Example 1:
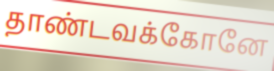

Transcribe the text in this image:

தாண்டவக்கோனே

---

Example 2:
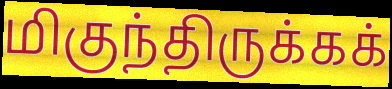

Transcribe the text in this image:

மிகுந்திருக்கக்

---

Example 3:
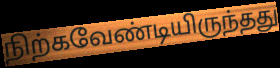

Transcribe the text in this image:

நிற்கவேண்டியிருந்தது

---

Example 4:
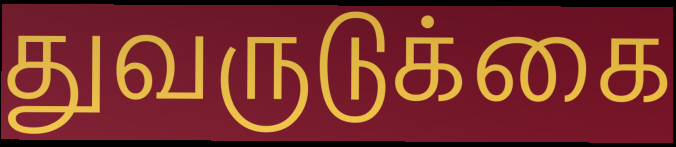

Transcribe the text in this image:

துவருடுக்கை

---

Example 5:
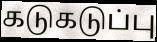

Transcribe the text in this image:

கடுகடுப்பு